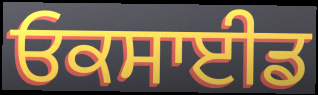
ਓਕਸਾਈਡ